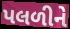
પલળીને